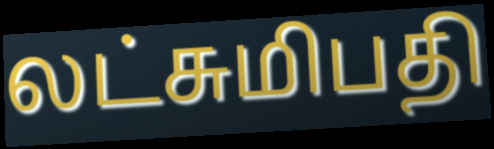
லட்சுமிபதி